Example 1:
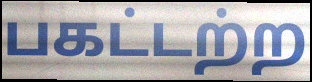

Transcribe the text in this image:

பகட்டற்ற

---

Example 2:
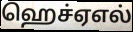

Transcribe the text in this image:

ஹெச்ஏஎல்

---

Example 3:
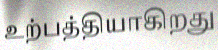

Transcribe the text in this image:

உற்பத்தியாகிறது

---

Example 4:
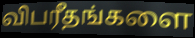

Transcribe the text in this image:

விபரீதங்களை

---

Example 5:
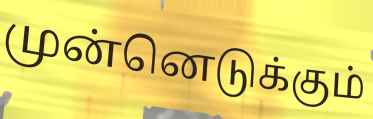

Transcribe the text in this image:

முன்னெடுக்கும்